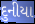
દુનીયા